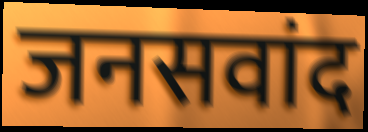
जनसवांद